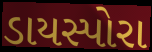
ડાયસ્પોરા